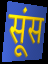
सूंस